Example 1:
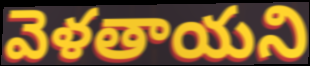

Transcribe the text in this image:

వెళతాయని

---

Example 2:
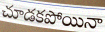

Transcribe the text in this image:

చూడకపోయినా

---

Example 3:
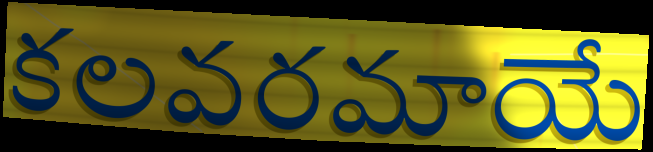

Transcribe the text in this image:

కలవరమాయే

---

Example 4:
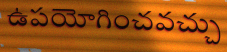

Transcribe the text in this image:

ఉపయోగించవచ్చు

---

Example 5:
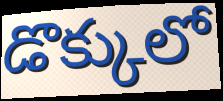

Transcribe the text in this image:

డొక్కులో